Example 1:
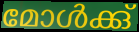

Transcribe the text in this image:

മോൾക്കു്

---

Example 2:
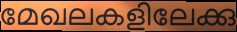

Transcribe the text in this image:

മേഖലകളിലേക്കു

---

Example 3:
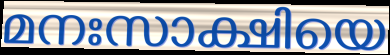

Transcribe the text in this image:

മനഃസാക്ഷിയെ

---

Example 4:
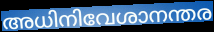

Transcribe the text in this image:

അധിനിവേശാനന്തര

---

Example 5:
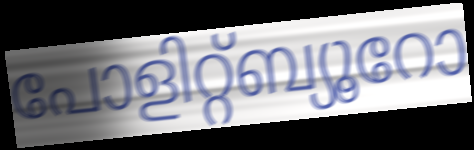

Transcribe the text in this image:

പോളിറ്റ്ബ്യൂറോ